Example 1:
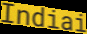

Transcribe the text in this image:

Indiai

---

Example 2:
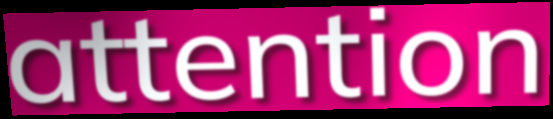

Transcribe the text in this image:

attention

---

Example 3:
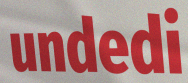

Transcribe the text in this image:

undedi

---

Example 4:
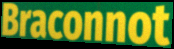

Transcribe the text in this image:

Braconnot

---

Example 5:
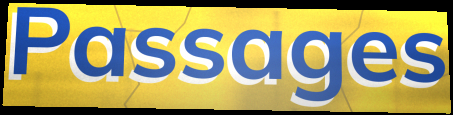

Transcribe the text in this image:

Passages